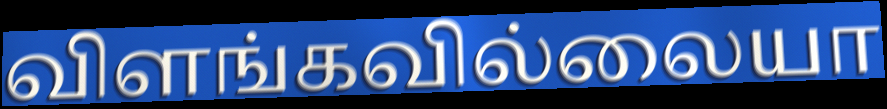
விளங்கவில்லையா